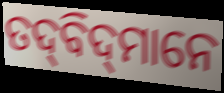
ତଦ୍‌ବିଦ୍‌ମାନେ